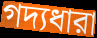
গদ্যধারা